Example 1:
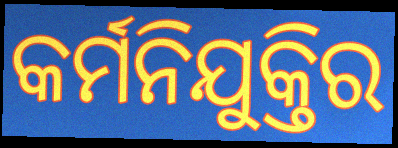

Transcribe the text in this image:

କର୍ମନିଯୁକ୍ତିର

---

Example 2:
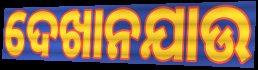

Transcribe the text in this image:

ଦେଖାନଯାଉ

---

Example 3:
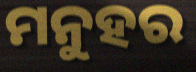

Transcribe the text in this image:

ମନୁହର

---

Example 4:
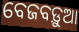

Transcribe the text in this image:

ବେଜବଡ଼ୁଆ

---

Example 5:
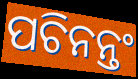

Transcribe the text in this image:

ପଚିନନ୍ତଂ